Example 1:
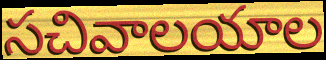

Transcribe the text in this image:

సచివాలయాల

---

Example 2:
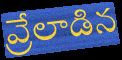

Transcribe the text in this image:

వ్రేలాడిన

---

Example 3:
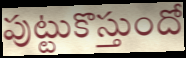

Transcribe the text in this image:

పుట్టుకొస్తుందో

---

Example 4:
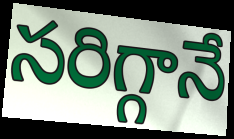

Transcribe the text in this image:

సరిగ్గానే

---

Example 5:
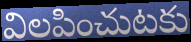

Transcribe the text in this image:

విలపించుటకు